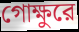
গোক্ষুরে